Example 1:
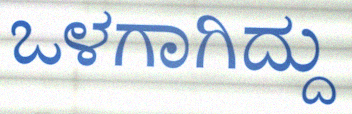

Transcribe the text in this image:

ಒಳಗಾಗಿದ್ದು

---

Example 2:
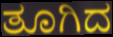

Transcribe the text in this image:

ತೂಗಿದ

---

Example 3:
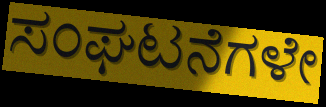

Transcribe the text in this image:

ಸಂಘಟನೆಗಳೇ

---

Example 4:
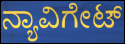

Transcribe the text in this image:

ನ್ಯಾವಿಗೇಟ್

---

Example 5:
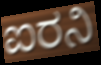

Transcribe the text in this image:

ಐರನಿ